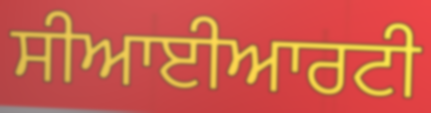
ਸੀਆਈਆਰਟੀ